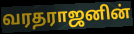
வரதராஜனின்